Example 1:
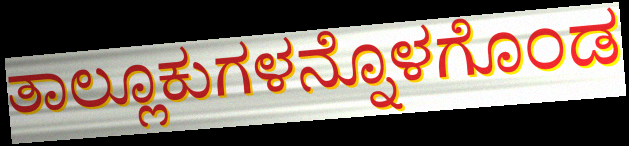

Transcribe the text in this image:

ತಾಲ್ಲೂಕುಗಳನ್ನೊಳಗೊಂಡ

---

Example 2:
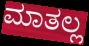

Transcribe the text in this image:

ಮಾತಲ್ಲ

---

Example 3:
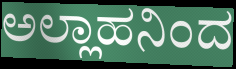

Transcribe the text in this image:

ಅಲ್ಲಾಹನಿಂದ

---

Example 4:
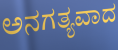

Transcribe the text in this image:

ಅನಗತ್ಯವಾದ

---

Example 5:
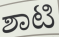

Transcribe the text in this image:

ಶಾಟಿ